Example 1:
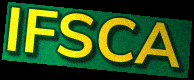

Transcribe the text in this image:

IFSCA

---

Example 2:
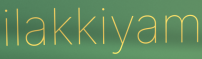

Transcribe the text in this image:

ilakkiyam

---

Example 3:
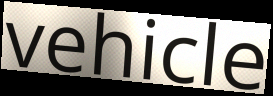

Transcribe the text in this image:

vehicle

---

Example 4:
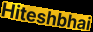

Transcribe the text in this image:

Hiteshbhai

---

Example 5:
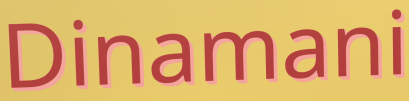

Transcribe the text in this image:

Dinamani